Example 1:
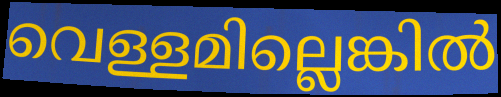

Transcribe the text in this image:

വെള്ളമില്ലെങ്കിൽ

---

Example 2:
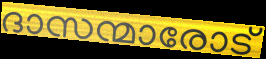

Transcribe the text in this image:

ദാസന്മാരോട്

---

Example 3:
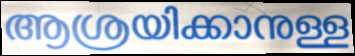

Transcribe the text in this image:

ആശ്രയിക്കാനുള്ള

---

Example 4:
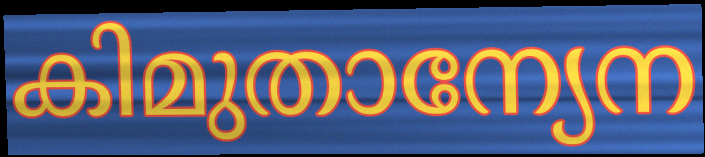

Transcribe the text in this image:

കിമുതാന്യേന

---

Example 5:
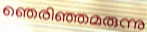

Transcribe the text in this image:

ഞെരിഞ്ഞമരുന്നു